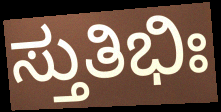
ಸ್ತುತಿಭಿಃ